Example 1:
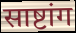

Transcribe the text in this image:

साष्टांग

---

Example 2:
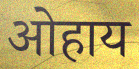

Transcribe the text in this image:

ओहाय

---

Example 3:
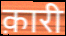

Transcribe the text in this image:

क़ारी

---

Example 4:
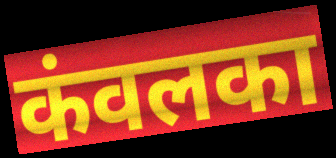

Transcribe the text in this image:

कंवलका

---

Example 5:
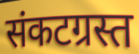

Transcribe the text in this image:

संकटग्रस्त